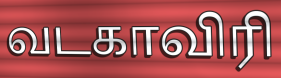
வடகாவிரி